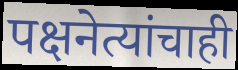
पक्षनेत्यांचाही